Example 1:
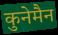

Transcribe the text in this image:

कुनेमैन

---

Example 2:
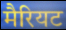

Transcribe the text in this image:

मैरियट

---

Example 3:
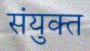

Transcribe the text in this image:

संयुक्‍त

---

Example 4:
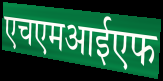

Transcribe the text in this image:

एचएमआईएफ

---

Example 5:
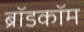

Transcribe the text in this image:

ब्रॉडकॉम